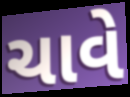
ચાવે